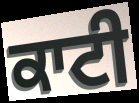
ਕਾਟੀ